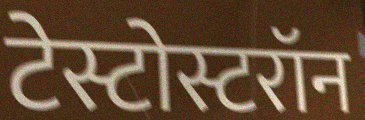
टेस्टोस्टरॉन